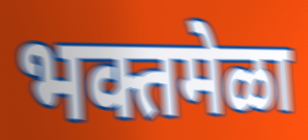
भक्तमेळा